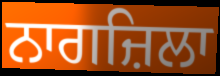
ਨਾਗਜ਼ਿਲਾ